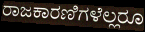
ರಾಜಕಾರಣಿಗಳೆಲ್ಲರೂ